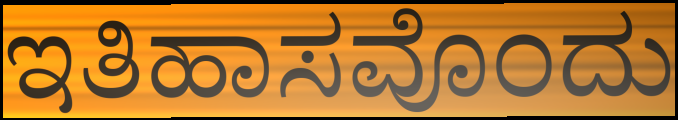
ಇತಿಹಾಸವೊಂದು